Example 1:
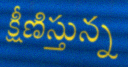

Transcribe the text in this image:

క్షీణిస్తున్న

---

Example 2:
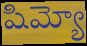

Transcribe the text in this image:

షిమ్యో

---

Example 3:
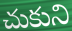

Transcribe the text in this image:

చుకుని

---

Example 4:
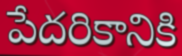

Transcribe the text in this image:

పేదరికానికి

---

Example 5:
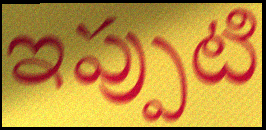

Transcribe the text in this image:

ఇప్పుటి